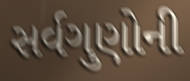
સર્વગુણોની